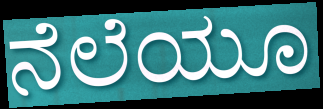
ನೆಲೆಯೂ